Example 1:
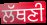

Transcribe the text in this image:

ਲੱਥਣੀ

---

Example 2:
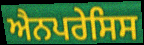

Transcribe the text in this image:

ਐਨਪਰੇਸਿਸ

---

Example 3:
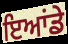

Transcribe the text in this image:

ਇਆਂਡੇ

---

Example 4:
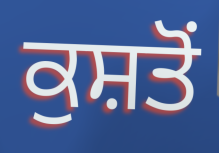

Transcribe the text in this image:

ਕੁਸ਼ਤੋਂ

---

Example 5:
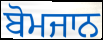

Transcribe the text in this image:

ਬੋਮਜਾਨ